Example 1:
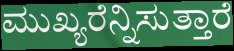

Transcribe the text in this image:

ಮುಖ್ಯರೆನ್ನಿಸುತ್ತಾರೆ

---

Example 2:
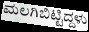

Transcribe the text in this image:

ಮಲಗಿಬಿಟ್ಟಿದ್ದಳು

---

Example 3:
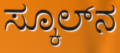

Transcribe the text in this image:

ಸ್ಕೂಲ್‌ನ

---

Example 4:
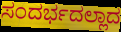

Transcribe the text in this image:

ಸಂದರ್ಭದಲ್ಲಾದ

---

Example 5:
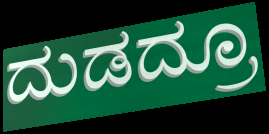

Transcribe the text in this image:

ದುಡದ್ರೂ